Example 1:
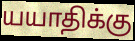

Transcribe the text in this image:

யயாதிக்கு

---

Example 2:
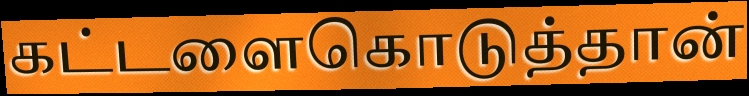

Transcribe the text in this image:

கட்டளைகொடுத்தான்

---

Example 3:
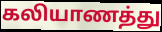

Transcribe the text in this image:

கலியாணத்து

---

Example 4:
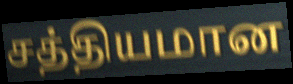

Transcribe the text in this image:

சத்தியமான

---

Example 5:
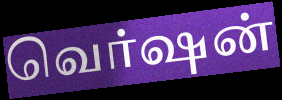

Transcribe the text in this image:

வெர்ஷன்